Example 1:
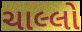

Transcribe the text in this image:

ચાલ્લો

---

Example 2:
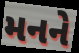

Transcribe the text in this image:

મનને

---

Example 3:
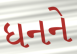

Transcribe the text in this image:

ધનને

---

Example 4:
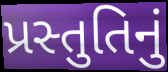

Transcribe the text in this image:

પ્રસ્તુતિનું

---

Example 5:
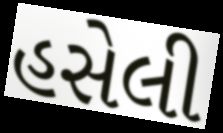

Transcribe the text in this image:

હસેલી